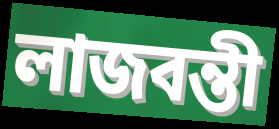
লাজবন্তী